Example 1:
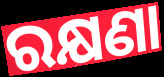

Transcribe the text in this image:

ରକ୍ଷଣା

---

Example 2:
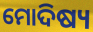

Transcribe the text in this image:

ମୋଦିଷ୍ୟ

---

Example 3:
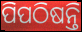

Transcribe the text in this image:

ପିପଠିଷନ୍ତି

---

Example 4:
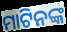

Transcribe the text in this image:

ମାଟିନଙ୍କ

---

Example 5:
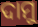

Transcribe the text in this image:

ଦାମୁ